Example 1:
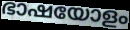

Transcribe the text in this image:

ഭാഷയോളം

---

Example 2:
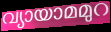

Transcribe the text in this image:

വ്യായാമമുറ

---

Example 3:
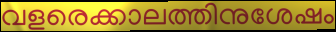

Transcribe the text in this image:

വളരെക്കാലത്തിനുശേഷം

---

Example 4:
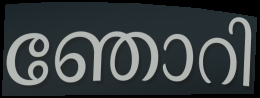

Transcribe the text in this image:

ഞോറി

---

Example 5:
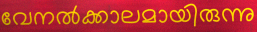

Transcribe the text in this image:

വേനൽക്കാലമായിരുന്നു